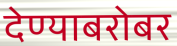
देण्याबरोबर